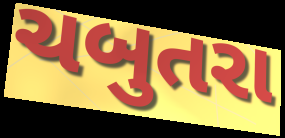
ચબુતરા